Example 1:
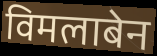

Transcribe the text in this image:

विमलाबेन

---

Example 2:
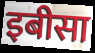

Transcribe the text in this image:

इबीसा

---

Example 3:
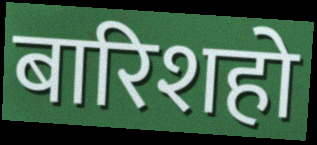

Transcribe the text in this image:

बारिशहो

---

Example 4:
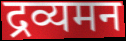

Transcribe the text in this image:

द्रव्यमन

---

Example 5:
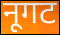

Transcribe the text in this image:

नूगट